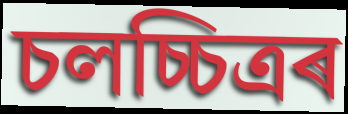
চলচ্চিত্ৰৰ